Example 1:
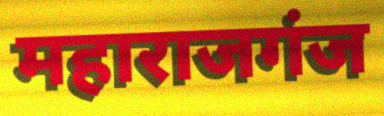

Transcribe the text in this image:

महाराजगंज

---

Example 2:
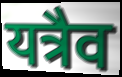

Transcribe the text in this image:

यत्रैव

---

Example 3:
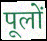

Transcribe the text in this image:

पूलों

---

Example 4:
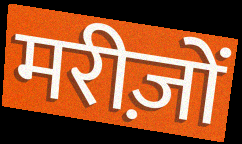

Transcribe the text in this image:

मरीज़ों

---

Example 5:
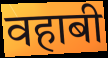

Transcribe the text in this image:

वहाबी